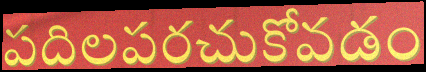
పదిలపరచుకోవడం